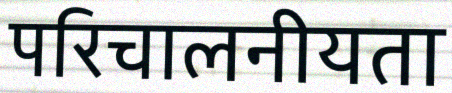
परिचालनीयता